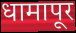
धामापूर